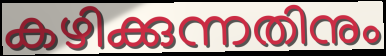
കഴിക്കുന്നതിനും